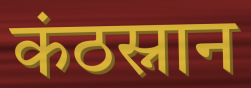
कंठस्नान